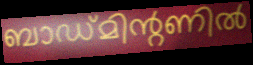
ബാഡ്മിന്റണിൽ